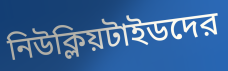
নিউক্লিয়টাইডদের